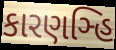
કારણઞ્હિ